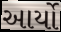
આર્યો